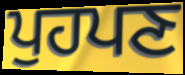
ਪੁਹਪਣ